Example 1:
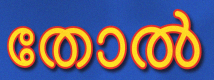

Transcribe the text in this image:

തോൽ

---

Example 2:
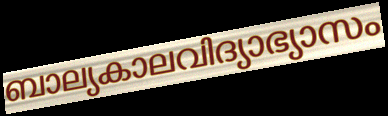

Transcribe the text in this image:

ബാല്യകാലവിദ്യാഭ്യാസം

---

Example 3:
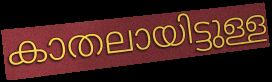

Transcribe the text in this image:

കാതലായിട്ടുള്ള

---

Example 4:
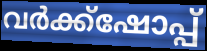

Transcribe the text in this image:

വർക്ക്ഷോപ്പ്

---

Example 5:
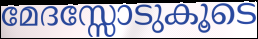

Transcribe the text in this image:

മേദസ്സോടുകൂടെ